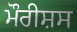
ਮੌਰੀਸ਼ਸ